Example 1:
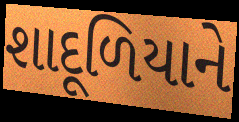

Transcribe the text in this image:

શાદૂળિયાને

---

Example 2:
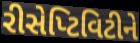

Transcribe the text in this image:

રીસેપ્ટિવિટીને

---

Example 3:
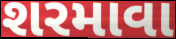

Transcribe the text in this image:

શરમાવા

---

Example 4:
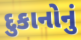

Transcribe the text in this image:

દુકાનોનું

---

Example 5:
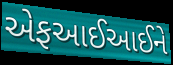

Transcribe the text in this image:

એફઆઈઆઈને